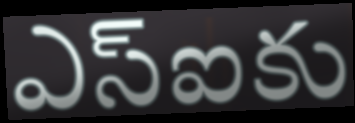
ఎస్ఐకు